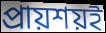
প্রায়শয়ই